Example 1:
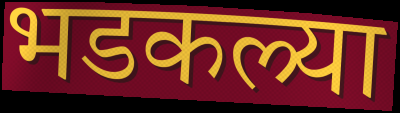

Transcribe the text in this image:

भडकल्या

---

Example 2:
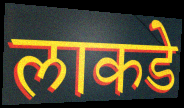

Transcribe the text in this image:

लाकडे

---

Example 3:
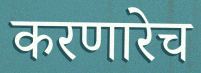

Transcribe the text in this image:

करणारेच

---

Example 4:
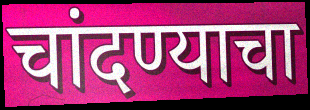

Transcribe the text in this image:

चांदण्याचा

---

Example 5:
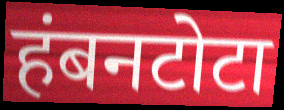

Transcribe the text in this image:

हंबनटोटा